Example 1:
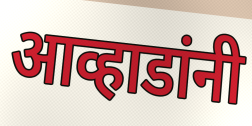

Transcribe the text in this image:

आव्हाडांनी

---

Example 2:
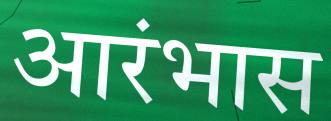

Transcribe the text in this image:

आरंभास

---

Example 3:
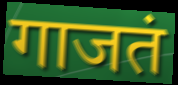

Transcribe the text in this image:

गाजतं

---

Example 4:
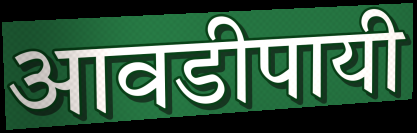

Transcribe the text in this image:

आवडीपायी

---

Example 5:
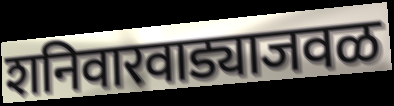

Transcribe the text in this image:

शनिवारवाड्याजवळ